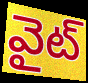
వైట్